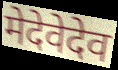
मेदेवेदेव